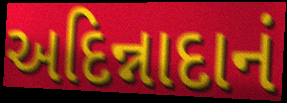
અદિન્નાદાનં